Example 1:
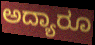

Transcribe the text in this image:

ಅದ್ಯಾರೂ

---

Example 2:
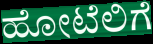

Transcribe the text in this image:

ಹೋಟೆಲಿಗೆ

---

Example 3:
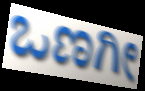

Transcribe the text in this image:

ಒಣಗೀ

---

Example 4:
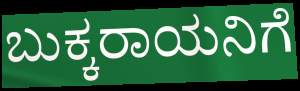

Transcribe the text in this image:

ಬುಕ್ಕರಾಯನಿಗೆ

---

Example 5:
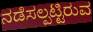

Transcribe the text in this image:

ನಡೆಸಲ್ಪಟ್ಟಿರುವ